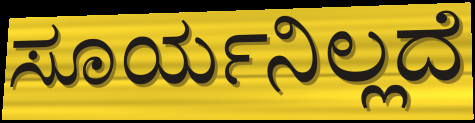
ಸೂರ್ಯನಿಲ್ಲದೆ